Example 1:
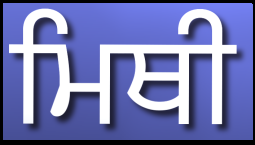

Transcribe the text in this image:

ਮਿਥੀ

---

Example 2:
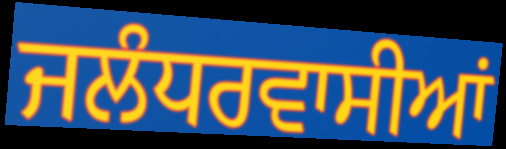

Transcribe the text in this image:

ਜਲੰਧਰਵਾਸੀਆਂ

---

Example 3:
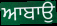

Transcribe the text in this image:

ਆਬਾਉ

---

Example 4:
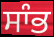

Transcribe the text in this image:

ਸਾੰਭ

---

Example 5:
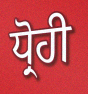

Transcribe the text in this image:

ਧ੍ਰੋਹੀ